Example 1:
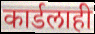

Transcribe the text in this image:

कार्डलाही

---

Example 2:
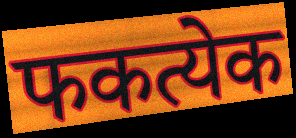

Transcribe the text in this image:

फकत्येक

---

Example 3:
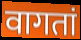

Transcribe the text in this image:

वागतां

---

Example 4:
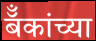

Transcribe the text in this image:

बॅँकांच्या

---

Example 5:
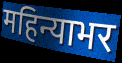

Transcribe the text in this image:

महिन्याभर